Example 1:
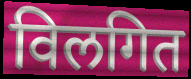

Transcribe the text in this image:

विलगित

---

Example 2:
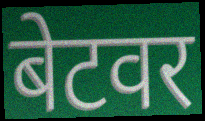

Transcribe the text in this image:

बेटवर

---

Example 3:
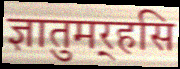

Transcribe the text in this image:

ज्ञातुमर्हसि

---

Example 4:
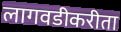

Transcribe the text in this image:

लागवडीकरीता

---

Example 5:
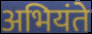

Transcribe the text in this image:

अभियंते